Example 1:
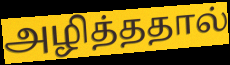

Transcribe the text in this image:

அழித்ததால்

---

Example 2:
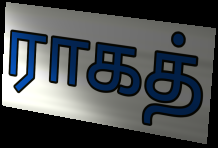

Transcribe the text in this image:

ராகத்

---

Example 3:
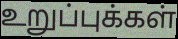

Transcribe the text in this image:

உறுப்புக்கள்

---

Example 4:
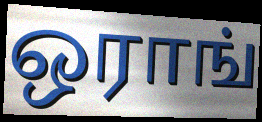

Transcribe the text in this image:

ஒராங்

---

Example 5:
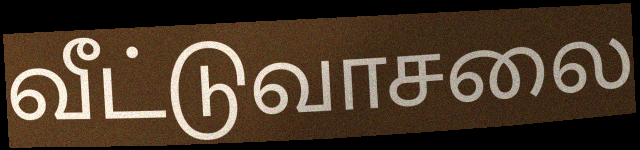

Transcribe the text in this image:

வீட்டுவாசலை